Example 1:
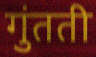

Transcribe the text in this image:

गुंतती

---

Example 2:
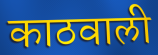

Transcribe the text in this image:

काठवाली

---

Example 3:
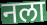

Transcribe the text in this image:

नला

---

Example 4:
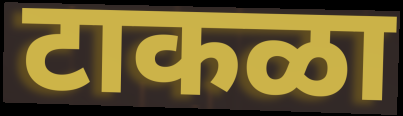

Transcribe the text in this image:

टाकळा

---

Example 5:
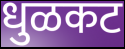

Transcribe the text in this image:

धुळकट